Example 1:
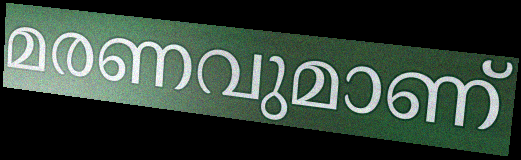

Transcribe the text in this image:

മരണവുമാണ്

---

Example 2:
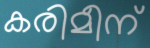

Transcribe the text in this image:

കരിമീന്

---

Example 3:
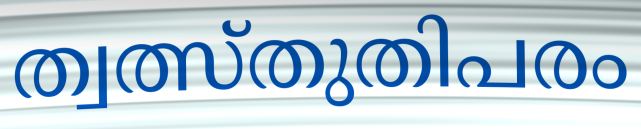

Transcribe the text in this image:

ത്വത്സ്തുതിപരം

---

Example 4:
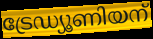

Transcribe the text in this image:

ട്രേഡ്യൂണിയന്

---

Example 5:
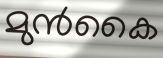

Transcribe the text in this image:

മുൻകൈ